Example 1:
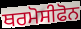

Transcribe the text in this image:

ਥਰਮੋਸੀਫੋਨ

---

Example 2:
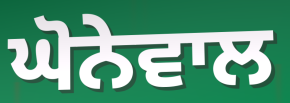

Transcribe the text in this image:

ਘੋਨੇਵਾਲ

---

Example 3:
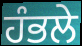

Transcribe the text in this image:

ਹੰਭਲੇ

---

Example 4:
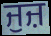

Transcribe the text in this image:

ਜੁਜ਼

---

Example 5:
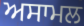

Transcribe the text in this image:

ਅਸਾਮਲ